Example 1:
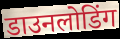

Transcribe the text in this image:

डाउनलोडिंग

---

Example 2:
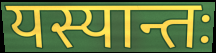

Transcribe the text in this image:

यस्यान्तः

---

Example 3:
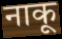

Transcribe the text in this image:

नाकू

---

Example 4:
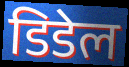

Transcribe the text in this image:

डिडेल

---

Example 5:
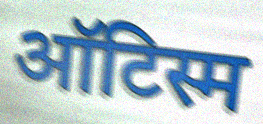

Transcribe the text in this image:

ऑटिस्म